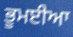
ਭੂਮਈਆ